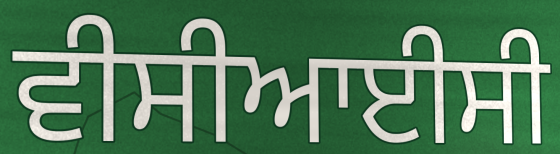
ਵੀਸੀਆਈਸੀ